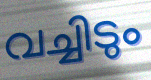
വച്ചിടും